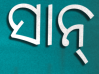
ସାନ୍